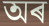
অৰ